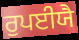
ਰੁਪਈਯੈ